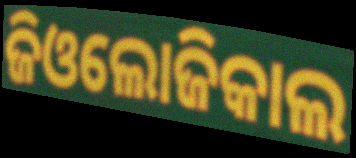
ଜିଓଲୋଜିକାଲ